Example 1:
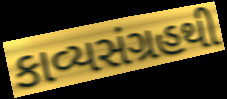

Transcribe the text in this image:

કાવ્યસંગ્રહથી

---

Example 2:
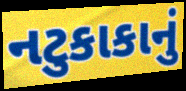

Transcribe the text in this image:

નટુકાકાનું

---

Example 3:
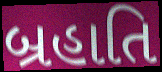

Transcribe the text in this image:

બ્રહાતિ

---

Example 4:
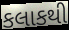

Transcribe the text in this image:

કલાકથી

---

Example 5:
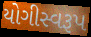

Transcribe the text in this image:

યોગીસ્વરૂપ